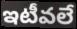
ఇటీవలే